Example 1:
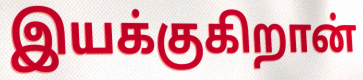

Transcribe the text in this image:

இயக்குகிறான்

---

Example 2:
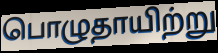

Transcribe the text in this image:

பொழுதாயிற்று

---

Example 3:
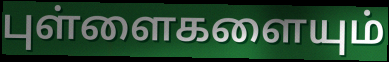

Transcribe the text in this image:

புள்ளைகளையும்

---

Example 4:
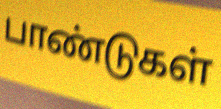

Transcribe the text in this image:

பாண்டுகள்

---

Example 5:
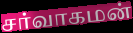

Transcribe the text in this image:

சர்வாகமன்